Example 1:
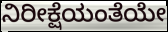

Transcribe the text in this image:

ನಿರೀಕ್ಷೆಯಂತೆಯೇ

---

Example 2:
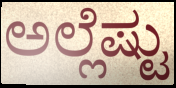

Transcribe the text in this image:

ಅಲ್ಲೆಷ್ಟು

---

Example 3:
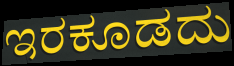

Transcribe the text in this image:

ಇರಕೂಡದು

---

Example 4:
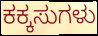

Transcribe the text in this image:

ಕಕ್ಕಸುಗಳು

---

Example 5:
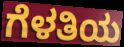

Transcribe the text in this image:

ಗೆಳತಿಯ